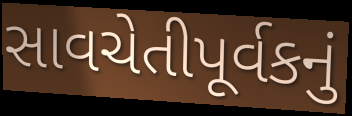
સાવચેતીપૂર્વકનું